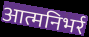
आत्मनिभर्र